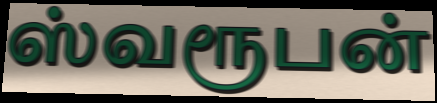
ஸ்வரூபன்